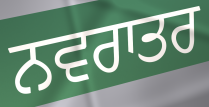
ਨਵਰਾਤਰ